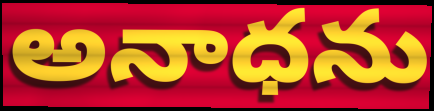
అనాధను